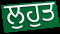
ਲੁਹੁਤ